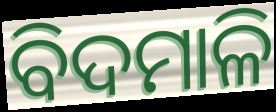
ବିଦମାଳି